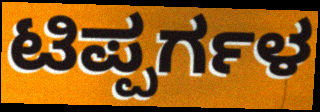
ಟಿಪ್ಪರ್ಗಳ